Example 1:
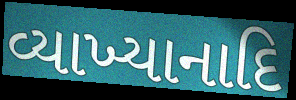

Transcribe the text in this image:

વ્યાખ્યાનાદિ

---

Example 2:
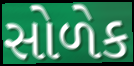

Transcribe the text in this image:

સોળેક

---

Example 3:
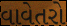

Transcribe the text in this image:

વાવેતરો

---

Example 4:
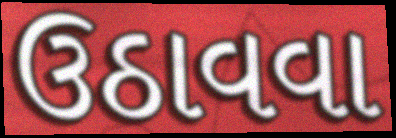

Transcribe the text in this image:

ઉઠાવવા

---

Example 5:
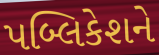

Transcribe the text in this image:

પબ્લિકેશને